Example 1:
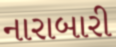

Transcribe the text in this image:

નારાબારી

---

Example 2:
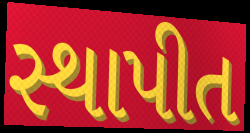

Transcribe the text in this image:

સ્થાપીત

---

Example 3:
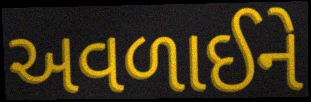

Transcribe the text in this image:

અવળાઈને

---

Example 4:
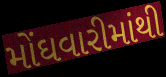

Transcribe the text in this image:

મોંઘવારીમાંથી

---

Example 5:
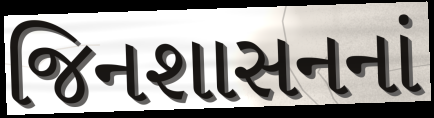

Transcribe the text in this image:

જિનશાસનનાં